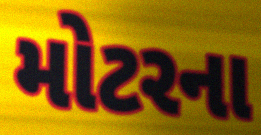
મોટરના